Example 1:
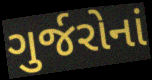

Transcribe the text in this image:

ગુર્જરોનાં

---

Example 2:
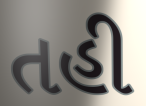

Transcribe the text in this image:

તહી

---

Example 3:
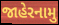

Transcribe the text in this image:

જાહેરનામુ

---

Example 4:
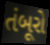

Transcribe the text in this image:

તંબૂરો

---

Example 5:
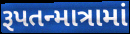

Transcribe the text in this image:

રૂપતન્માત્રામાં